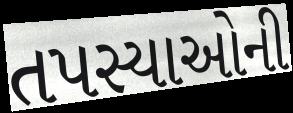
તપસ્યાઓની